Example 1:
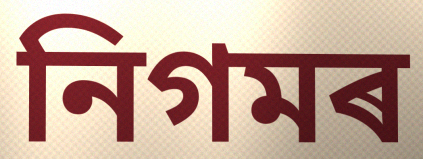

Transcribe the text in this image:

নিগমৰ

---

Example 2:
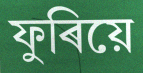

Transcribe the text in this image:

ফুৰিয়ে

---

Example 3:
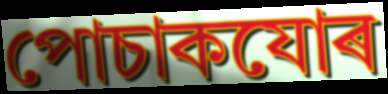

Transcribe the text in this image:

পোচাকযোৰ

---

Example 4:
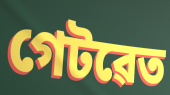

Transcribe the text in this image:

গেটৱেত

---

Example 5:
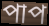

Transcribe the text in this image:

পাপ